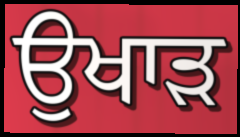
ਉਖਾੜ